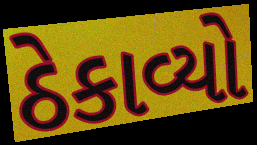
ઠેકાવ્યો